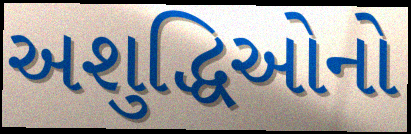
અશુદ્ધિઓનો